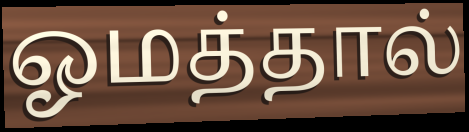
ஓமத்தால்